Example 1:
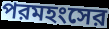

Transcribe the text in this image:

পরমহংসের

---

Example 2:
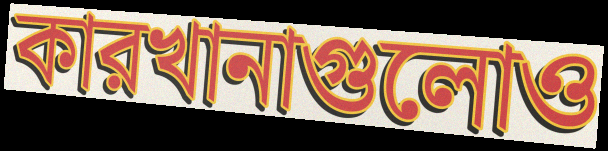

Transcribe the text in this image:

কারখানাগুলোও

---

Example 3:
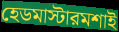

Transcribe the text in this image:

হেডমাস্টারমশাই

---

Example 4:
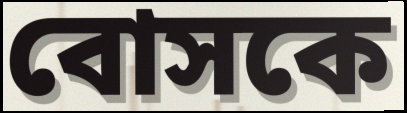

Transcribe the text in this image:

বোসকে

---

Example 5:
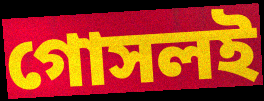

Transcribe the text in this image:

গোসলই